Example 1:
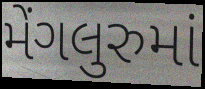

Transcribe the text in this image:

મેંગલુરુમાં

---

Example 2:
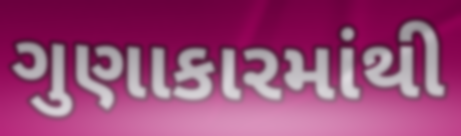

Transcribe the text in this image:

ગુણાકારમાંથી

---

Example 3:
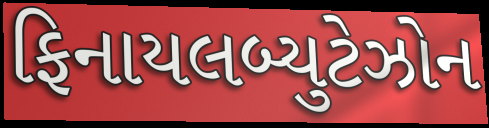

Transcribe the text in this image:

ફિનાયલબ્યુટેઝોન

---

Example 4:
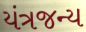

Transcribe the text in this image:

યંત્રજન્ય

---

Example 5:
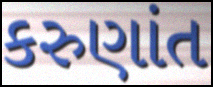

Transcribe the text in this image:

કરુણાંત